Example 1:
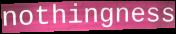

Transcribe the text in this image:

nothingness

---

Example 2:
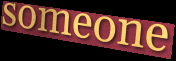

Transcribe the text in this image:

someone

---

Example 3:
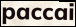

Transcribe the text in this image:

paccai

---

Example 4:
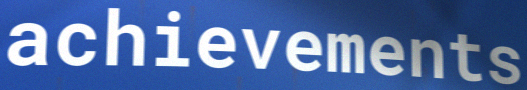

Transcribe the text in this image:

achievements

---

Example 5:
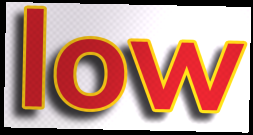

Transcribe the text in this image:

low